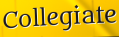
Collegiate